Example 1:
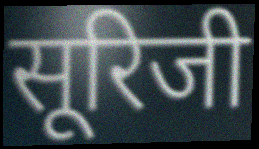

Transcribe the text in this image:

सूरिजी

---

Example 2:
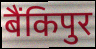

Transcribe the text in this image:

बैंकिपुर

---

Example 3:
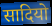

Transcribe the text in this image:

सादियो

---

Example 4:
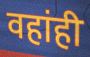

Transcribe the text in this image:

वहांही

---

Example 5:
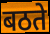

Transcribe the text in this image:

बठते